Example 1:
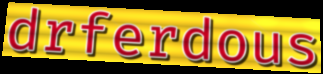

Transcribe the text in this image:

drferdous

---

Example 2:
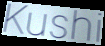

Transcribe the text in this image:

Kushi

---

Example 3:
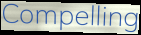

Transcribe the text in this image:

Compelling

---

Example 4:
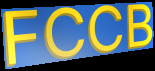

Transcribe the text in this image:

FCCB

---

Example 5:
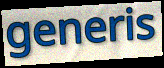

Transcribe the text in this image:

generis